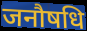
जनौषधि